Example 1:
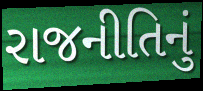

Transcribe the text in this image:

રાજનીતિનું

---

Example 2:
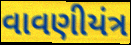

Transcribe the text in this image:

વાવણીયંત્ર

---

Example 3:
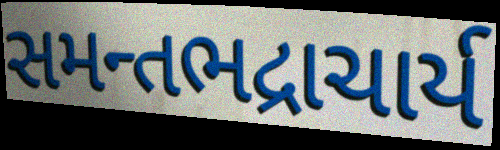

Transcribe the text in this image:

સમન્તભદ્રાચાર્ય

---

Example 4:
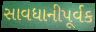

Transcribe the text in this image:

સાવધાનીપૂર્વક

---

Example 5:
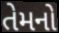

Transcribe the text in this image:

તેમનો